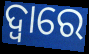
ଦ୍ବାରେ